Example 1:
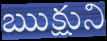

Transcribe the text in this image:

ఋక్షుని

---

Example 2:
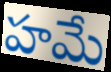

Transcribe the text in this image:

హమే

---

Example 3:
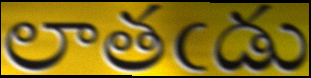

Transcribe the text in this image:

లాతఁడు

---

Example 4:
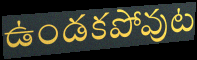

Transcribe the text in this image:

ఉండకపోవుట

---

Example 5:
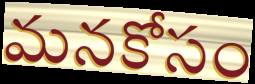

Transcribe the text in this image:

మనకోసం